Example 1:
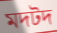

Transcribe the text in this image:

মদটদ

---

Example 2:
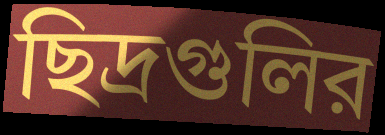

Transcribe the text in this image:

ছিদ্রগুলির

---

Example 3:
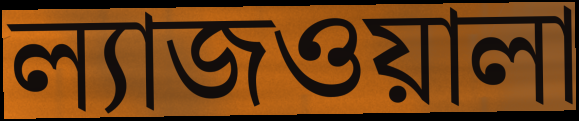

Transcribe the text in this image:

ল্যাজওয়ালা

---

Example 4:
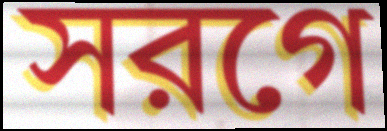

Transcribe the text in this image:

সরগে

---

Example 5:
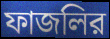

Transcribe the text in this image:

ফাজলির